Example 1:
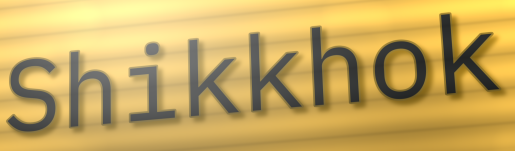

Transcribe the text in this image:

Shikkhok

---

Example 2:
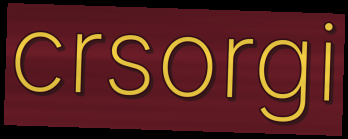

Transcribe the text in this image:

crsorgi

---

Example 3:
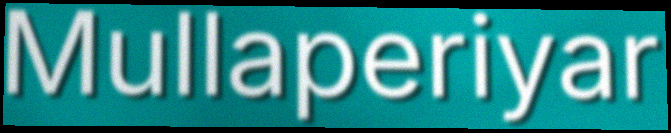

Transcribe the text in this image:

Mullaperiyar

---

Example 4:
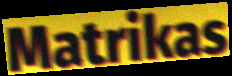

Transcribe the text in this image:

Matrikas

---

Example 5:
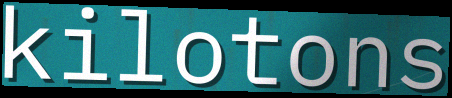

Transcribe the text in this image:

kilotons